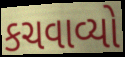
કચવાવ્યો